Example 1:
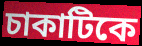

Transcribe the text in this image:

চাকাটিকে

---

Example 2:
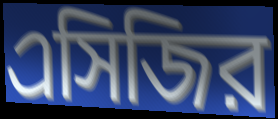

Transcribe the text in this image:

এসিজির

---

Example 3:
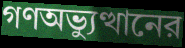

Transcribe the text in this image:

গণঅভ্যুত্থানের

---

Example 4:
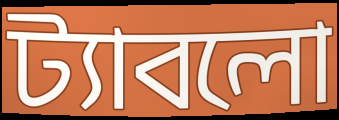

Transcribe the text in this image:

ট্যাবলো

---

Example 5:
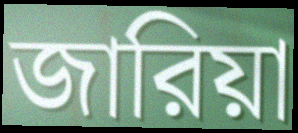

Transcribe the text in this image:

জারিয়া